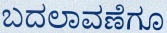
ಬದಲಾವಣೆಗೂ